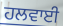
ਹਲਵਾਈ